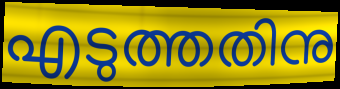
എടുത്തതിനു